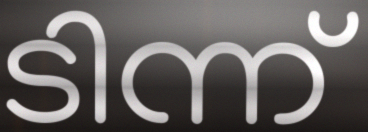
ടിന്ന്